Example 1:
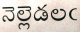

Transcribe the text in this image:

నెల్లెడలఁ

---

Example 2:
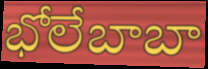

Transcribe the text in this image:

భోలేబాబా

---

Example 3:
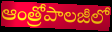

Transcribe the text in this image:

ఆంత్రోపాలజీలో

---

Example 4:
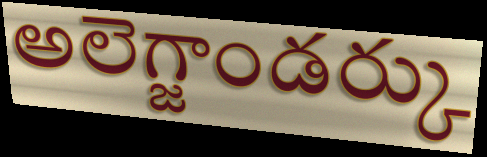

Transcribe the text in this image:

అలెగ్జాండర్కు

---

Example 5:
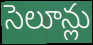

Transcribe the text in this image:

సెలూన్లు